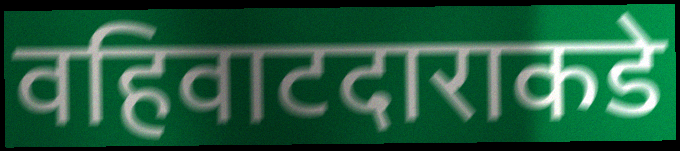
वहिवाटदाराकडे